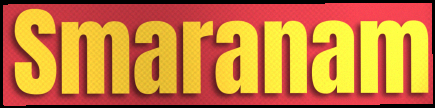
Smaranam